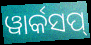
ୱାର୍କସପ୍